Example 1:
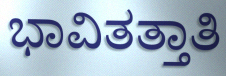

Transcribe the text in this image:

ಭಾವಿತತ್ತಾತಿ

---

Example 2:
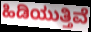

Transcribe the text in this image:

ಹಿಡಿಯುತ್ತಿವೆ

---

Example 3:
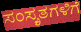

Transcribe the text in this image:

ಸಂಸ್ಕೃತಗಳಿಗೆ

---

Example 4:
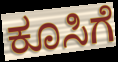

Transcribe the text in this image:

ಕೂಸಿಗೆ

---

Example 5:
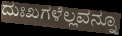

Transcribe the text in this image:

ದುಃಖಗಳೆಲ್ಲವನ್ನೂ